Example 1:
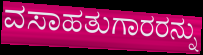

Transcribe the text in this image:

ವಸಾಹತುಗಾರರನ್ನು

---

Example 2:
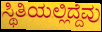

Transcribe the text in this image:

ಸ್ಥಿತಿಯಲ್ಲಿದ್ದೆವು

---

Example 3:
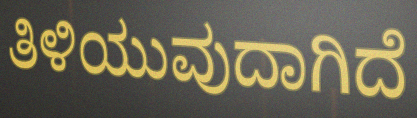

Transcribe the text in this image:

ತಿಳಿಯುವುದಾಗಿದೆ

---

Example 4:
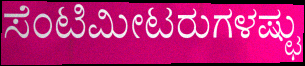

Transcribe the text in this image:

ಸೆಂಟಿಮೀಟರುಗಳಷ್ಟು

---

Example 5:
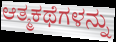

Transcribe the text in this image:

ಆತ್ಮಕಥೆಗಳನ್ನು